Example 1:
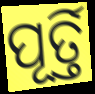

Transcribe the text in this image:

ପୂର୍ତ୍ତି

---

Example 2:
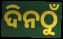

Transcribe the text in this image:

ଦିନଠୁଁ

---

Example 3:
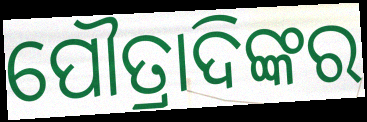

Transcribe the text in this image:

ପୌତ୍ରାଦିଙ୍କର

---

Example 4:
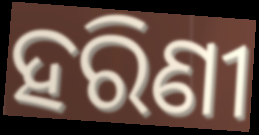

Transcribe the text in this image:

ହରିଣୀ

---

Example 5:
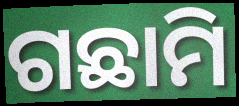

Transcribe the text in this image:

ଗଛାମି